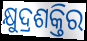
କ୍ଷୁଦ୍ରଶକ୍ତିର